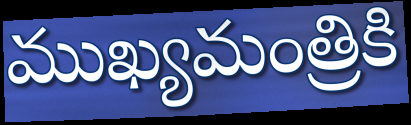
ముఖ్యమంత్రికి